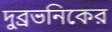
দুব্রভনিকের